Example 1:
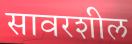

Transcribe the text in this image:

सावरशील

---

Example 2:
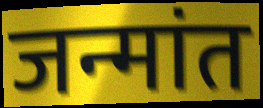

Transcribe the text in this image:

जन्मांत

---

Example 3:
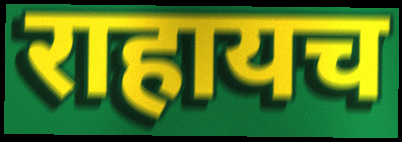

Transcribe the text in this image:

राहायच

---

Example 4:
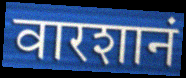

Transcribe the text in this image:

वारशानं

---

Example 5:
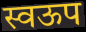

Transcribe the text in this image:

स्वऊप